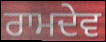
ਰਾਮਦੇਵ